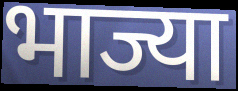
भाज्या